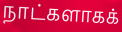
நாட்களாகக்